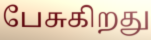
பேசுகிறது